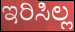
ಇರಿಸಿಲ್ಲ